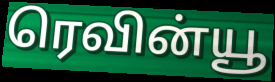
ரெவின்யூ